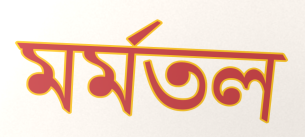
মর্মতল